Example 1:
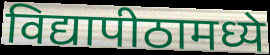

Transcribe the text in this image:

विद्यापीठामध्ये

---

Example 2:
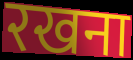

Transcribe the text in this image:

रखना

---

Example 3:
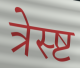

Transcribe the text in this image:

त्रेस्ष्ट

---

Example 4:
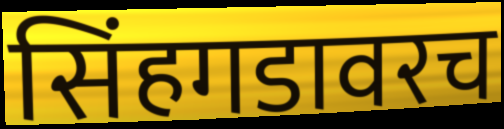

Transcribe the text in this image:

सिंहगडावरच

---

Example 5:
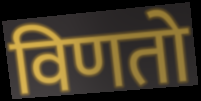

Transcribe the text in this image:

विणतो